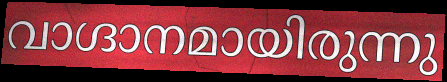
വാഗ്ദാനമായിരുന്നു